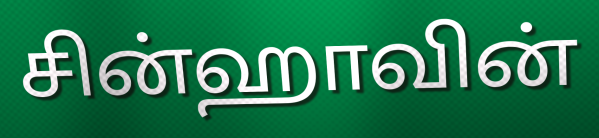
சின்ஹாவின்